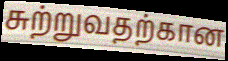
சுற்றுவதற்கான